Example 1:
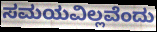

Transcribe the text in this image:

ಸಮಯವಿಲ್ಲವೆಂದು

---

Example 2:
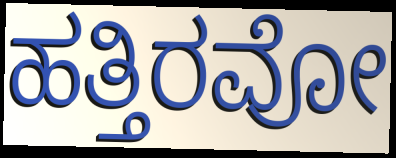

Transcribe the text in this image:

ಹತ್ತಿರವೋ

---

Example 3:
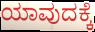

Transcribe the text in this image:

ಯಾವುದಕ್ಕೆ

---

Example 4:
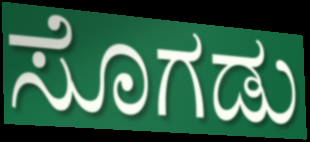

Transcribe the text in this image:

ಸೊಗಡು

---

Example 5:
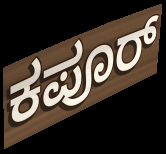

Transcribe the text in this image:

ಕಪೂರ್